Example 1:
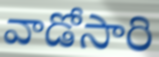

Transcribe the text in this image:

వాడోసారి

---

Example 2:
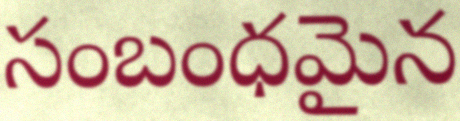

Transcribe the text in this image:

సంబంధమైన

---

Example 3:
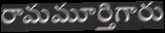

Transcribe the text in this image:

రామమూర్తిగారు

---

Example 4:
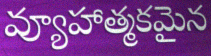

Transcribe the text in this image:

వ్యూహాత్మకమైన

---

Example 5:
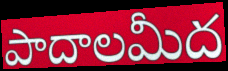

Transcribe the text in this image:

పాదాలమీద